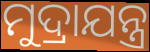
ମୁଦ୍ରାଯନ୍ତ୍ର